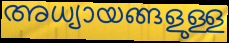
അധ്യായങ്ങളുള്ള